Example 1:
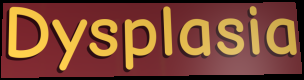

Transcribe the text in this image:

Dysplasia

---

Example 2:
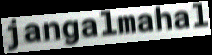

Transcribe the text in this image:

jangalmahal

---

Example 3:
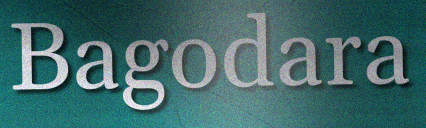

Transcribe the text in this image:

Bagodara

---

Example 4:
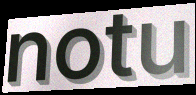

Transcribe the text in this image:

notu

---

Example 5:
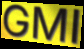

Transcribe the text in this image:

GMI